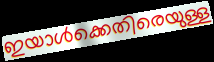
ഇയാൾക്കെതിരെയുള്ള